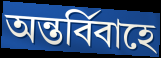
অন্তর্বিবাহে